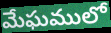
మేఘములో